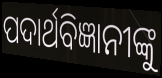
ପଦାର୍ଥବିଜ୍ଞାନୀଙ୍କୁ